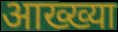
आख्ख्या